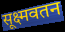
सूक्ष्मवतन